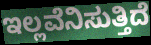
ಇಲ್ಲವೆನಿಸುತ್ತಿದೆ